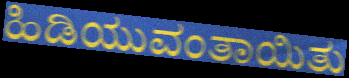
ಹಿಡಿಯುವಂತಾಯಿತು